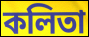
কলিতা